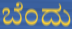
ಬೆಂದು